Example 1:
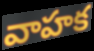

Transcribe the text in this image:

వాహక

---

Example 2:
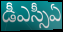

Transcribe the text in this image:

డీఎస్సీఏ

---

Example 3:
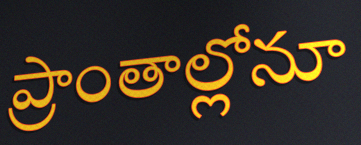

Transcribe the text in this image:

ప్రాంతాల్లోనూ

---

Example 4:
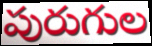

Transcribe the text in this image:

పురుగుల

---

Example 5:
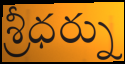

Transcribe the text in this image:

శ్రీధర్ను